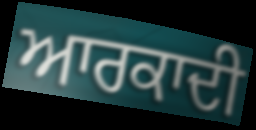
ਆਰਕਾਦੀ